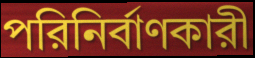
পরিনির্বাণকারী